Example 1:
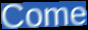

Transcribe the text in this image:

Come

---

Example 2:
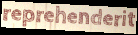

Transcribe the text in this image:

reprehenderit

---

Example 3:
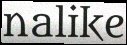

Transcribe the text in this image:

nalike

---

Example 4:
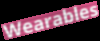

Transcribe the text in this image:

Wearables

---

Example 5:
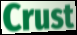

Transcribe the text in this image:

Crust